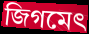
জিগমেৎ